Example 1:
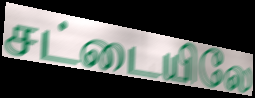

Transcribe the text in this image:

சட்டையிலே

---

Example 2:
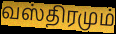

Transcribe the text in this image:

வஸ்திரமும்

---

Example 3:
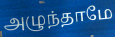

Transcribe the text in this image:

அழுந்தாமே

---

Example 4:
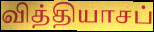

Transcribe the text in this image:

வித்தியாசப்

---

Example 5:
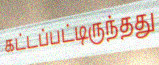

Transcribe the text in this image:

கட்டப்பட்டிருந்தது